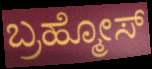
ಬ್ರಹ್ಮೋಸ್